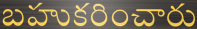
బహుకరించారు